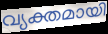
വ്യക്തമായി